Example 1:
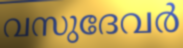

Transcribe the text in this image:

വസുദേവർ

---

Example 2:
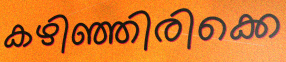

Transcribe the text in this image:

കഴിഞ്ഞിരിക്കെ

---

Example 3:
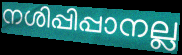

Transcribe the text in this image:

നശിപ്പിപ്പാനല്ല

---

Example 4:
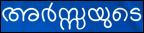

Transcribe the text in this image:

അർസ്സയുടെ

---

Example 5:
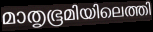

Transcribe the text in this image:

മാതൃഭൂമിയിലെത്തി